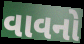
વાવનો